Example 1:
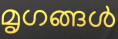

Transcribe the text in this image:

മൃഗങ്ങൾ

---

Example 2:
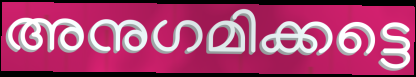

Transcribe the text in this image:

അനുഗമിക്കട്ടെ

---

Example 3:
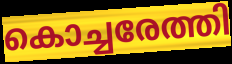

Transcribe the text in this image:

കൊച്ചരേത്തി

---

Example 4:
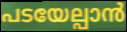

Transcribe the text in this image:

പടയേല്പാൻ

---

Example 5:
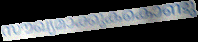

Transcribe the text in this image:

സൗഖ്യമാക്കുകകൊണ്ടു